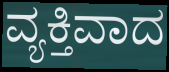
ವ್ಯಕ್ತಿವಾದ